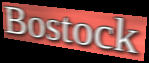
Bostock